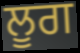
ਲੂਗ